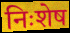
निःशेष